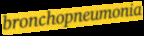
bronchopneumonia